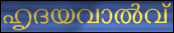
ഹൃദയവാൽവ്